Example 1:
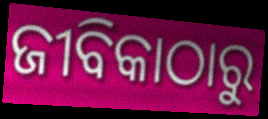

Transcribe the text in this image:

ଜୀବିକାଠାରୁ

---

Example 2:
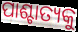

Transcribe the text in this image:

ପାଶ୍ଚାତ୍ୟକୁ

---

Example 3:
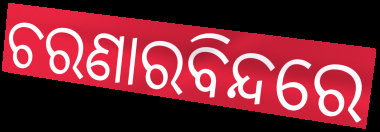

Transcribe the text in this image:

ଚରଣାରବିନ୍ଦରେ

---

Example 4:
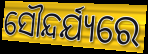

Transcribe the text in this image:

ସୌନ୍ଦର୍ଯ୍ୟରେ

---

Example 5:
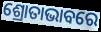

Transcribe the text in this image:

ଶ୍ରୋତାଭାବରେ